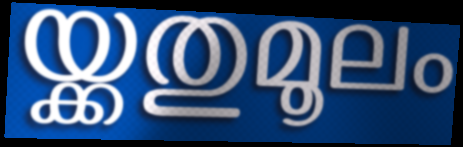
യ്ക്കതുമൂലം